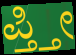
ಪ್ತ್ತೀ